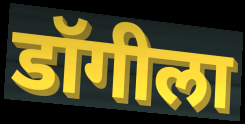
डॉगीला